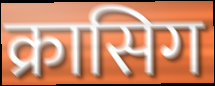
क्रासिग